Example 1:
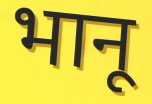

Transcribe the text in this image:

भानू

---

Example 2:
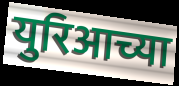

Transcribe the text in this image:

युरिआच्या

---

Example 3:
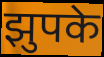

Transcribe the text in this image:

झुपके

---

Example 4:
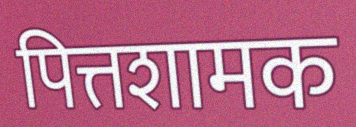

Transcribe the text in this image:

पित्तशामक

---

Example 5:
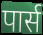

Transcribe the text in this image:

पार्स